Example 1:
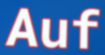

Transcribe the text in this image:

Auf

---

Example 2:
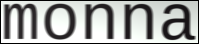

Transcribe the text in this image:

monna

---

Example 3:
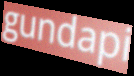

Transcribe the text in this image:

gundapi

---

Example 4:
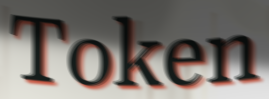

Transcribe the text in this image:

Token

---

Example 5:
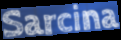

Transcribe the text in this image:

Sarcina